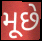
મૂછે